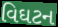
વિઘટન